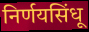
निर्णयसिंधू